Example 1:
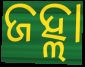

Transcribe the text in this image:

ଜହ୍ଲା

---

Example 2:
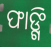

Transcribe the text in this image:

ଫାଙ୍ଗି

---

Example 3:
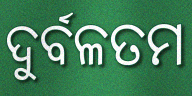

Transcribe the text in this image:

ଦୁର୍ବଳତମ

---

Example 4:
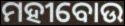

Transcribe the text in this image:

ମହୀବୋଉ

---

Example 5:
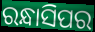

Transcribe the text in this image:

ରନ୍ଧାସିପର